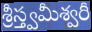
శ్రీస్త్వమీశ్వరీ